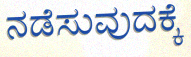
ನಡೆಸುವುದಕ್ಕೆ